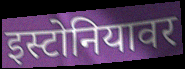
इस्टोनियावर